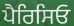
ਪੈਰਿਸਿਓ